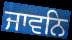
ਜਾਵਨਿ